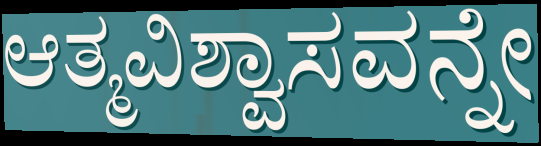
ಆತ್ಮವಿಶ್ವಾಸವನ್ನೇ